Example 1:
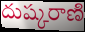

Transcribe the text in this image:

దుష్కరాణి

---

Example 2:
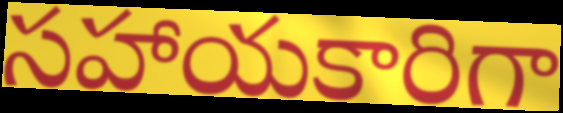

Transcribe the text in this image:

సహాయకారిగా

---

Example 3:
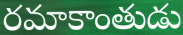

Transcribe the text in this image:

రమాకాంతుడు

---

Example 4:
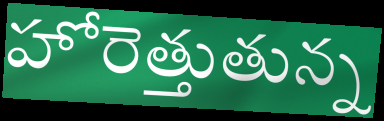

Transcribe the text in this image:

హోరెత్తుతున్న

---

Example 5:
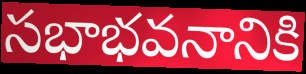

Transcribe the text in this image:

సభాభవనానికి